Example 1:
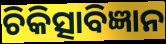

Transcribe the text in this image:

ଚିକିତ୍ସାବିଜ୍ଞାନ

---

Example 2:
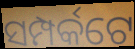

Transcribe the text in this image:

ସମ୍ପର୍କଟେ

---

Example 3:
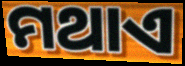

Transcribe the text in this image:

ମଥାଏ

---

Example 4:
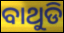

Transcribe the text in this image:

ବାଥୁଡି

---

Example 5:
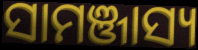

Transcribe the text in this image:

ସାମଞ୍ଜାସ୍ୟ